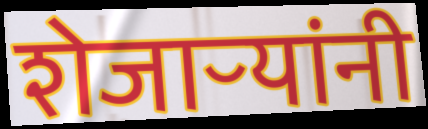
शेजाऱ्यांनी